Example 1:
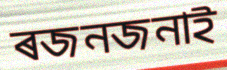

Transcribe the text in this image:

ৰজনজনাই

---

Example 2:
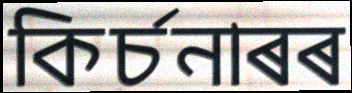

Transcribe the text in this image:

কিৰ্চনাৰৰ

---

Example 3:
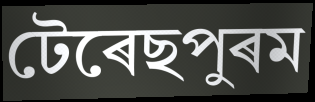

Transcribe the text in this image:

টেৰেছপুৰম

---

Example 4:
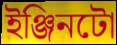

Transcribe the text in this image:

ইঞ্জিনটো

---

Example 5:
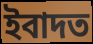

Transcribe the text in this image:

ইবাদত